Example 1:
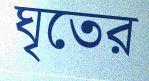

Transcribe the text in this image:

ঘৃতের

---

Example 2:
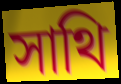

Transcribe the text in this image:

সাথি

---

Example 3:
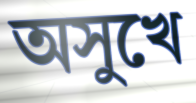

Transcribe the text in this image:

অসুখে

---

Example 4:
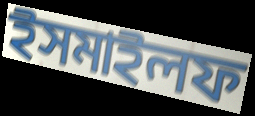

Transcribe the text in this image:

ইসমাইলফ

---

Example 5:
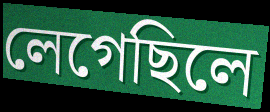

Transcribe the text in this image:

লেগেছিলে